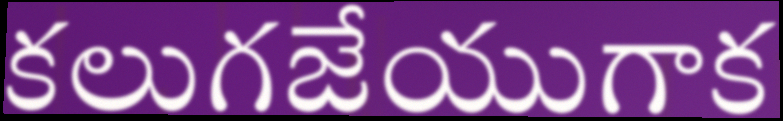
కలుగజేయుగాక